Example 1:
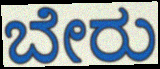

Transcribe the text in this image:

ಬೇರು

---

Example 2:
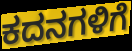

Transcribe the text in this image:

ಕದನಗಳಿಗೆ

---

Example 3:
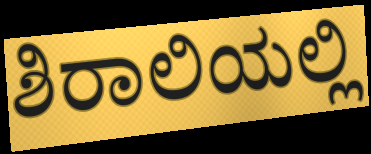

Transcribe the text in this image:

ಶಿರಾಲಿಯಲ್ಲಿ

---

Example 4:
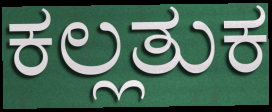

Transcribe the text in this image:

ಕಲ್ಲತುಕ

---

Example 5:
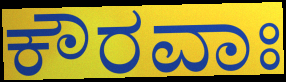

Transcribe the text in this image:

ಕೌರವಾಃ